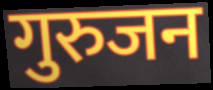
गुरुजन